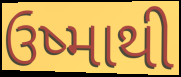
ઉષ્માથી